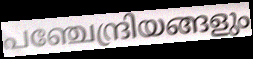
പഞ്ചേന്ദ്രിയങ്ങളും